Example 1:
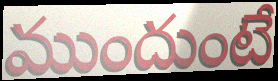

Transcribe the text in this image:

ముందుంటే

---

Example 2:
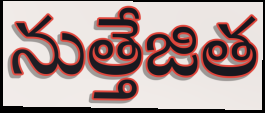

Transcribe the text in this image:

నుత్తేజిత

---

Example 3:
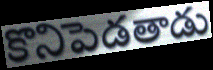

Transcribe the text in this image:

కొనిపెడతాడు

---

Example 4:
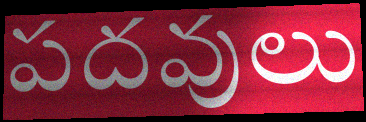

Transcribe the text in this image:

పదవులు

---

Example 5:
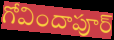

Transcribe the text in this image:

గోవిందాపూర్